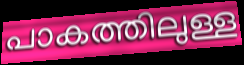
പാകത്തിലുള്ള